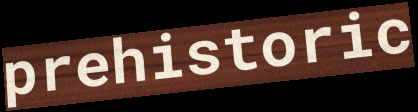
prehistoric